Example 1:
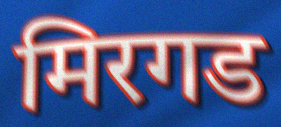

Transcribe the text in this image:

मिरगड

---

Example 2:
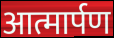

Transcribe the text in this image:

आत्मार्पण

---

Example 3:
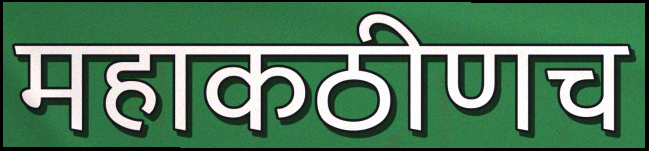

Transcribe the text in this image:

महाकठीणच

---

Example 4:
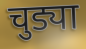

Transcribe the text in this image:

चुड्या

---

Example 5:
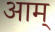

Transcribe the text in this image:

आम्